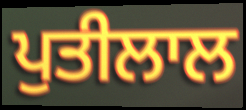
ਪੁਤੀਲਾਲ